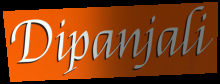
Dipanjali